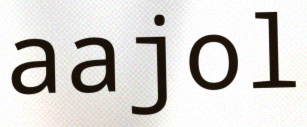
aajol